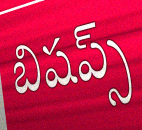
బిషప్స్